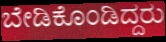
ಬೇಡಿಕೊಂಡಿದ್ದರು